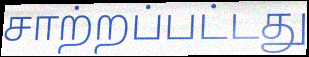
சாற்றப்பட்டது